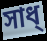
সাধ্